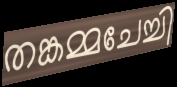
തങ്കമ്മചേച്ചി